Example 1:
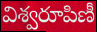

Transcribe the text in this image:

విశ్వరూపిణీ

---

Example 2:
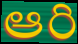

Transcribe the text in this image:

ఆరి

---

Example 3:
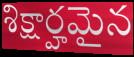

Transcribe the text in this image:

శిక్షార్హమైన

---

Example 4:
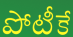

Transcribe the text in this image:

పోటీకే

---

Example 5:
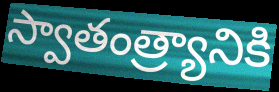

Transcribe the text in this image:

స్వాతంత్ర్యానికి